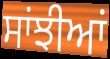
ਸਾਂਝੀਆਂ